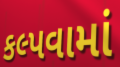
કલ્પવામાં